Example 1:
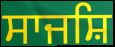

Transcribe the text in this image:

ਸਾਜਸ਼ਿ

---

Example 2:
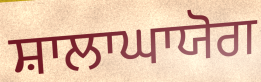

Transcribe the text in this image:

ਸ਼ਾਲਾਘਾਯੋਗ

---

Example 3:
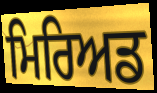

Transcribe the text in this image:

ਮਿਰਿਅਡ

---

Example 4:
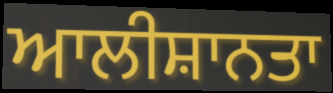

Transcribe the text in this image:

ਆਲੀਸ਼ਾਨਤਾ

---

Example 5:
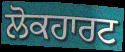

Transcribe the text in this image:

ਲੋਕਹਾਰਟ